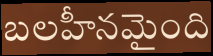
బలహీనమైంది